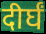
दीर्घं